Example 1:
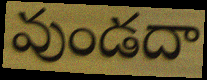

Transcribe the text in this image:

వుండదా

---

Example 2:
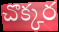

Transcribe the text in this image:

చొక్కర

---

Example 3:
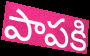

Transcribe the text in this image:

పాపకి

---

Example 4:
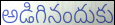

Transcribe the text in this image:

అడిగినందుకు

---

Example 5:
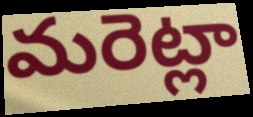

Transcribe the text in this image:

మరెట్లా